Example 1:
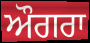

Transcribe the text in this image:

ਔਗਰਾ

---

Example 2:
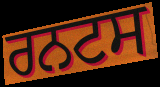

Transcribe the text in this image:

ਰਨਟਸ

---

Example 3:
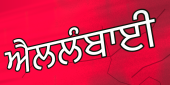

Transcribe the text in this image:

ਐਲਲੰਬਾਈ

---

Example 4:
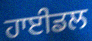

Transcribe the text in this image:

ਹਾਈਡਲ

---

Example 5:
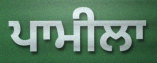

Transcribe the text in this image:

ਪਾਮੀਲਾ